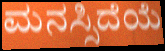
ಮನಸ್ಸಿದೆಯೆ